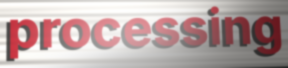
processing